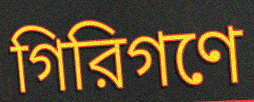
গিরিগণে